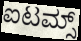
ಐಟಮ್ಸ್